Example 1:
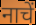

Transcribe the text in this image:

नाचें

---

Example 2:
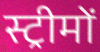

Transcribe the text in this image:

स्ट्रीमों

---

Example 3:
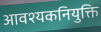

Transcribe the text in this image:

आवश्यकनियुक्ति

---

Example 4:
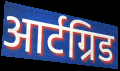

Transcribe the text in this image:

आर्टग्रिड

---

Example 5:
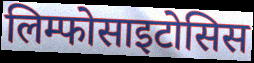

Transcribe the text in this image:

लिम्फोसाइटोसिस